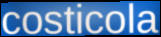
costicola